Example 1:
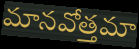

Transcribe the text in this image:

మానవోత్తమా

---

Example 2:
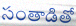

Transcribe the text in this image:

సంతాడితో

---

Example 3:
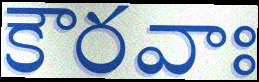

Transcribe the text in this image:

కౌరవాః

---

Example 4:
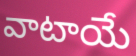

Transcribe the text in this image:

వాటాయే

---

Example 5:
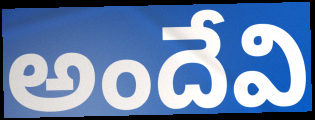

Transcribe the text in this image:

అందేవి